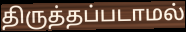
திருத்தப்படாமல்